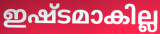
ഇഷ്ടമാകില്ല